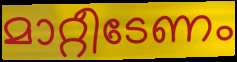
മാറ്റീടേണം